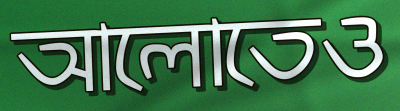
আলোতেও